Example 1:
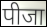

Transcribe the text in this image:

पीजा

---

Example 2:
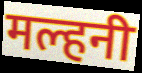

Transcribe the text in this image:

मल्हनी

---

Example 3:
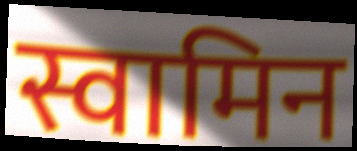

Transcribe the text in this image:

स्वामिन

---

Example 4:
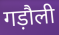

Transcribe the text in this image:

गड़ौली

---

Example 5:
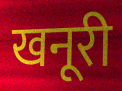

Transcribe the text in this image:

खनूरी